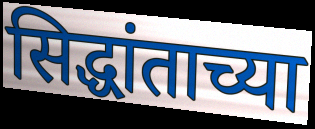
सिद्धांताच्या